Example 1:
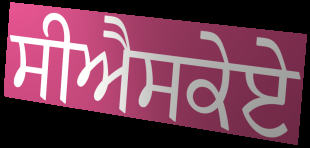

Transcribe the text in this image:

ਸੀਐਸਕੇਏ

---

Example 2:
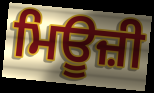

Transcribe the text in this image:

ਮਿਊਜ਼ੀ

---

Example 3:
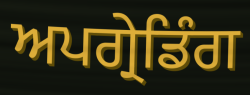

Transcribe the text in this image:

ਅਪਗ੍ਰੇਡਿੰਗ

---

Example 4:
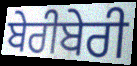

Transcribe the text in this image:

ਬੇਰੀਬੇਰੀ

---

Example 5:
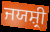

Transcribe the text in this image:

ਜਯਸ਼੍ਰੀ